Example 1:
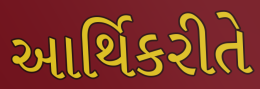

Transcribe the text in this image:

આર્થિકરીતે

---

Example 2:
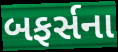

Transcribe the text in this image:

બફર્સના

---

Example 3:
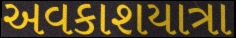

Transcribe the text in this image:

અવકાશયાત્રા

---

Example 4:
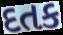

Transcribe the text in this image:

દતક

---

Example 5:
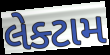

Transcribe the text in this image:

લેક્ટામ